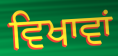
ਵਿਖਾਵਾਂ